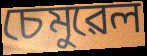
চেমুৱেল